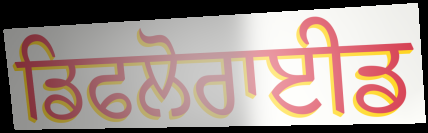
ਡਿਫਲੋਰਾਈਡ